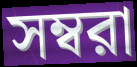
সম্বরা